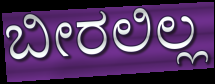
ಬೀರಲಿಲ್ಲ